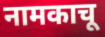
नामकाचू